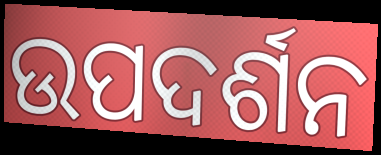
ଉପଦର୍ଶନ